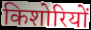
किशोरियों